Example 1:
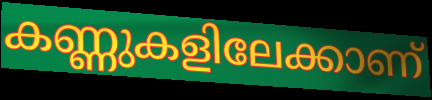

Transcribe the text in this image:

കണ്ണുകളിലേക്കാണ്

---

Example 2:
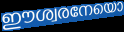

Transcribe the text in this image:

ഈശ്വരനേയൊ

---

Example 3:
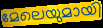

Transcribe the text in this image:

മേലെയുമായി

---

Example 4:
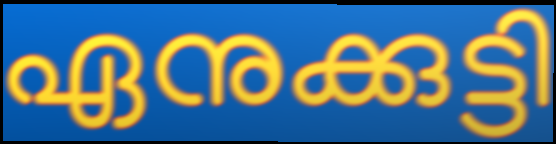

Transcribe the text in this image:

ഏനുക്കുട്ടി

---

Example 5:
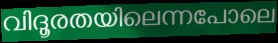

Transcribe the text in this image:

വിദൂരതയിലെന്നപോലെ